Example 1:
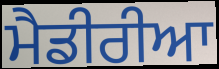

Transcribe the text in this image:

ਮੈਡੀਰੀਆ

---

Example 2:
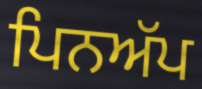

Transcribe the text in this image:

ਪਿਨਅੱਪ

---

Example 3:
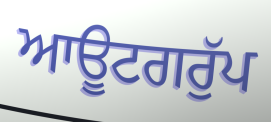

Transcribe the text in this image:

ਆਊਟਗਰੁੱਪ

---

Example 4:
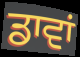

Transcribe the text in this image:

ਡਾਵਾਂ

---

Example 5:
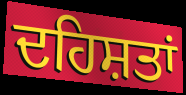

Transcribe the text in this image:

ਦਹਿਸ਼ਤਾਂ